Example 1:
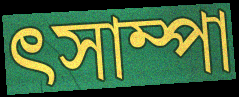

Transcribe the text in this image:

ৎসাম্পা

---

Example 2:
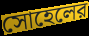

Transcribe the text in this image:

সোহেলের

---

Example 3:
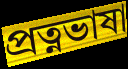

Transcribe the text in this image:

প্রত্নভাষা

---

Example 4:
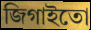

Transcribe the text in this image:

জিগাইতো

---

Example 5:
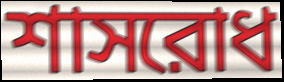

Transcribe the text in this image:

শাসরোধ